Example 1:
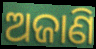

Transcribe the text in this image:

ଅଜାଣି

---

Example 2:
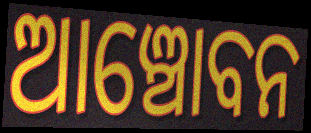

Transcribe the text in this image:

ଆଞ୍ଚୋବନ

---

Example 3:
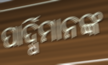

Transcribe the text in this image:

ପାର୍ଦ୍ଧିମାନଙ୍କ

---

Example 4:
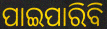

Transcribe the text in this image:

ପାଇପାରିବି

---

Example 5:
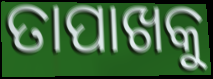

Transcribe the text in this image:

ତାପାଖକୁ